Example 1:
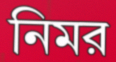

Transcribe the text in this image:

নিমর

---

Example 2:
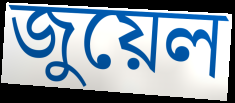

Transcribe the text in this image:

জুয়েল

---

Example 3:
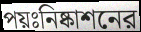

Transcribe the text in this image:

পয়ঃনিষ্কাশনের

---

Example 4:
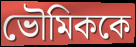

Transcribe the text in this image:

ভৌমিককে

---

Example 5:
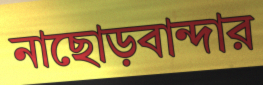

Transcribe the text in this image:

নাছোড়বান্দার